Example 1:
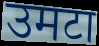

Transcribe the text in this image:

उमटा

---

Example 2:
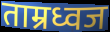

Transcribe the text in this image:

ताम्रध्वज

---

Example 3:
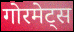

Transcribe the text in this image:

गोरमेट्स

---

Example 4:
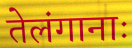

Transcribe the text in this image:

तेलंगानाः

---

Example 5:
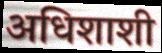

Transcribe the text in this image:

अधिशाशी